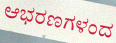
ಆಭರಣಗಳಂದ